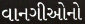
વાનગીઓનો